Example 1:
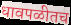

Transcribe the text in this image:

धावपळीतच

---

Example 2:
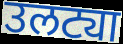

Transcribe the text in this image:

उलट्या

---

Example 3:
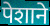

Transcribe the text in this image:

पेशाने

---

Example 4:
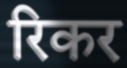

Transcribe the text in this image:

रिकर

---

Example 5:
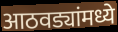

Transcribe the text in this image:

आठवड्यांमध्ये